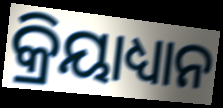
କ୍ରିୟାଧ୍ୟାନ